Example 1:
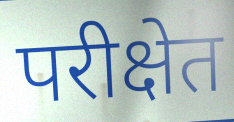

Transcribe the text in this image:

परीक्षेत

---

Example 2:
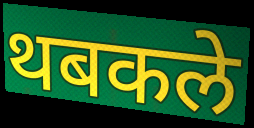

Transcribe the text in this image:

थबकले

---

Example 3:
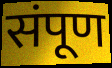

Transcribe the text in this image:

संपूण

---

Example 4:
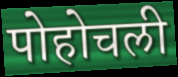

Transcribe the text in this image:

पोहोचली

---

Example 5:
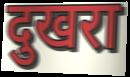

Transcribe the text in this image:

दुखरा